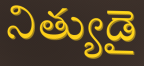
నిత్యుడై